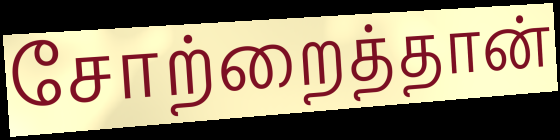
சோற்றைத்தான்